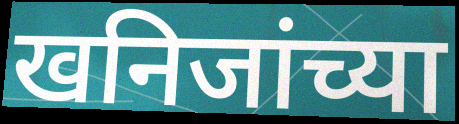
खनिजांच्या